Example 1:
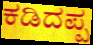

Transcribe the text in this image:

ಕಡಿದಪ್ಪ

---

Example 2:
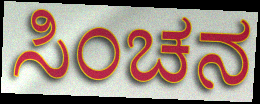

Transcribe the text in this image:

ಸಿಂಚನ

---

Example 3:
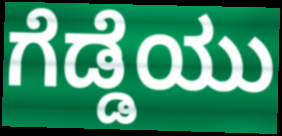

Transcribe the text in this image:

ಗೆಡ್ಡೆಯು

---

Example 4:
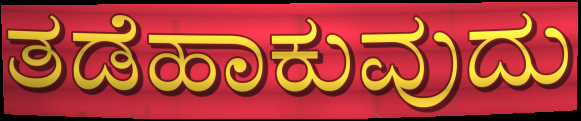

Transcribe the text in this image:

ತಡೆಹಾಕುವುದು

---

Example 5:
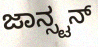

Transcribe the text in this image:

ಜಾನ್ಸ್ಟನ್